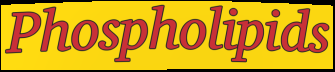
Phospholipids